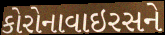
કોરોનાવાઇરસને